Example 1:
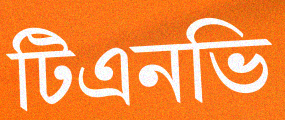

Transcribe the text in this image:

টিএনভি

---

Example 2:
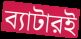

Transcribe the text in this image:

ব্যাটারই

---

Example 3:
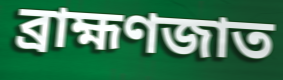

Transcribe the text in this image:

ব্রাহ্মণজাত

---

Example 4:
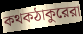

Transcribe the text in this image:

কথকঠাকুরেরা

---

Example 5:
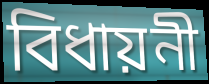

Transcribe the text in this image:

বিধায়নী